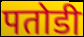
पतोडी